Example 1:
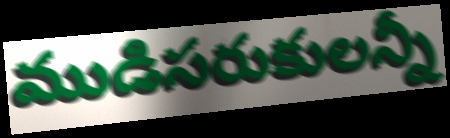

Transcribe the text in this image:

ముడిసరుకులన్నీ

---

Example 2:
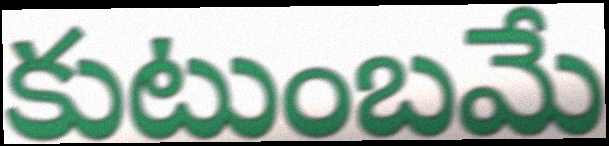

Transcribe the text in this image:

కుటుంబమే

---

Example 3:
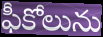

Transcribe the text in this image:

ఫీకోలును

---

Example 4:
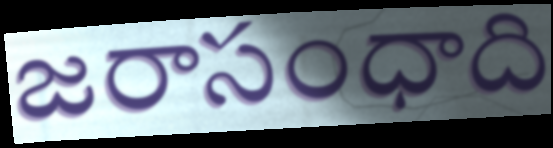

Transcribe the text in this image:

జరాసంధాది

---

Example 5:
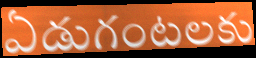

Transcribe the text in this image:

ఏడుగంటలకు